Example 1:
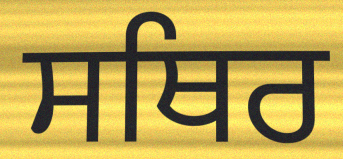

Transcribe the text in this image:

ਸਥਿਰ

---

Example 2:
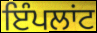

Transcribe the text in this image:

ਇੰਪਲਾਂਟ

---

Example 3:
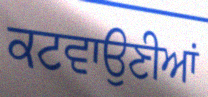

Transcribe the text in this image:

ਕਟਵਾਉਣੀਆਂ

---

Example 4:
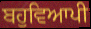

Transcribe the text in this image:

ਬਹੁਵਿਆਪੀ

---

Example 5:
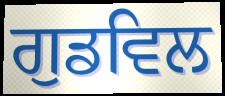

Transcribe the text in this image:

ਗੁਡਵਿਲ